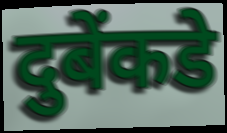
दुबेंकडे